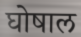
घोषाल